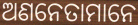
ଅଣନେତାମାନେ